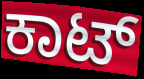
ಕಾಟ್